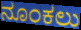
ನೂಂಕಲು